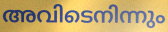
അവിടെനിന്നും